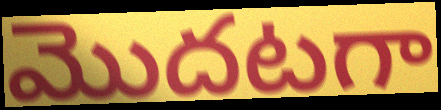
మొదటగా